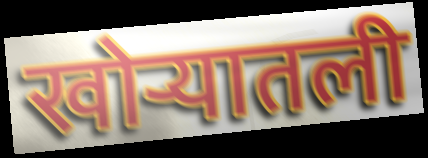
खोऱ्यातली